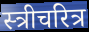
स्त्रीचरित्र